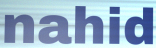
nahid